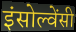
इंसोल्वेंसी